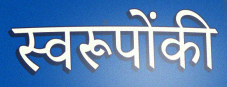
स्वरूपोंकी